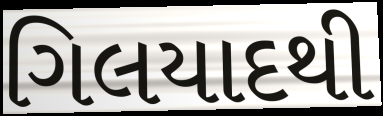
ગિલયાદથી